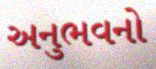
અનુભવનો